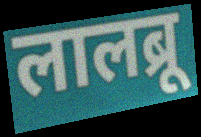
लालब्रू